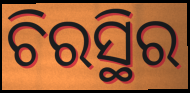
ଚିରସ୍ଥିର